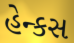
હેન્કસ